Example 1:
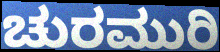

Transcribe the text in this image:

ಚುರಮುರಿ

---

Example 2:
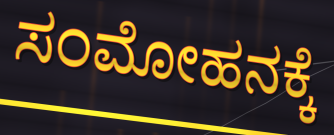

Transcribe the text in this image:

ಸಂಮೋಹನಕ್ಕೆ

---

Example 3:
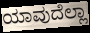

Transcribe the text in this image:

ಯಾವುದೆಲ್ಲಾ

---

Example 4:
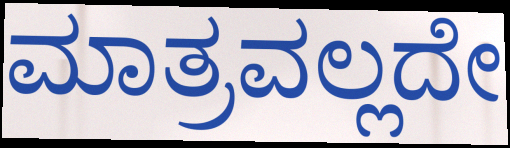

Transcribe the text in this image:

ಮಾತ್ರವಲ್ಲದೇ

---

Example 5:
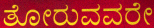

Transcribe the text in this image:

ತೋರುವವರೇ